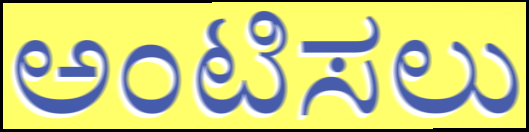
ಅಂಟಿಸಲು